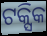
ଟକ୍ସିକ